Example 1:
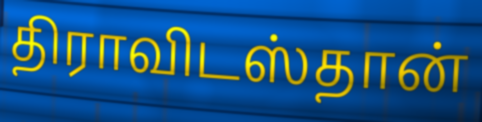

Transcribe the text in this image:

திராவிடஸ்தான்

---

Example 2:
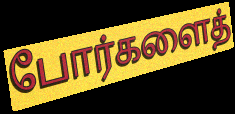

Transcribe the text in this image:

போர்களைத்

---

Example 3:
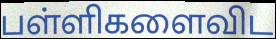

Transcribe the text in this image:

பள்ளிகளைவிட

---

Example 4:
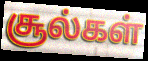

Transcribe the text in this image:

சூல்கள்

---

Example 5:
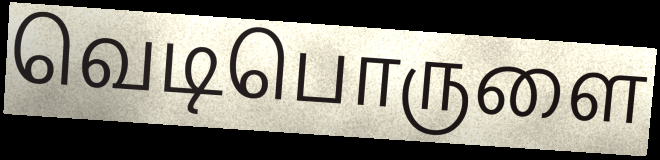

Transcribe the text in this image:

வெடிபொருளை